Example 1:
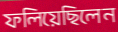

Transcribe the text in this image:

ফলিয়েছিলেন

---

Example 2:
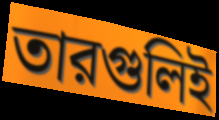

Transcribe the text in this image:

তারগুলিই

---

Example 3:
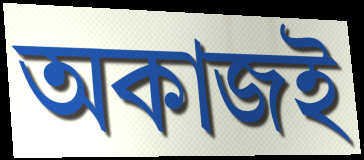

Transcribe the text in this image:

অকাজই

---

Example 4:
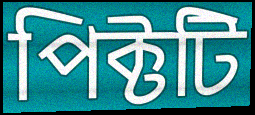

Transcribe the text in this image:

পিক্টটি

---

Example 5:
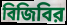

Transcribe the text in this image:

বিজিবির